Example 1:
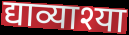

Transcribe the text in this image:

द्याव्याश्या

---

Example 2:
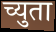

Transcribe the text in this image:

च्युता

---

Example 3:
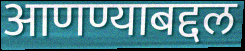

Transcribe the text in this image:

आणण्याबद्दल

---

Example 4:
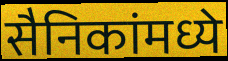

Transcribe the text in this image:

सैनिकांमध्ये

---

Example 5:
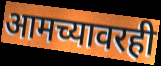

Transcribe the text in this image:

आमच्यावरही